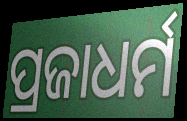
ପ୍ରଜାଧର୍ମ